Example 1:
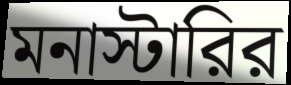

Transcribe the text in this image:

মনাস্টারির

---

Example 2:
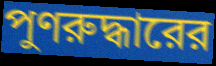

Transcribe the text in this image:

পুণরুদ্ধারের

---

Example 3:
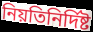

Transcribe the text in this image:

নিয়তিনির্দিষ্ট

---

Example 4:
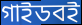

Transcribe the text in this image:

গাইডবই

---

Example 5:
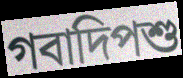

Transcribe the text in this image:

গবাদিপশু